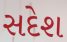
સદેશ